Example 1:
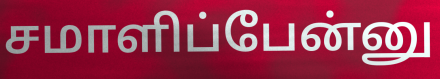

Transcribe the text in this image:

சமாளிப்பேன்னு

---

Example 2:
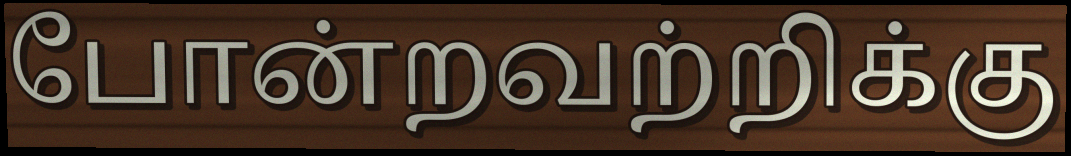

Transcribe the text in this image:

போன்றவற்றிக்கு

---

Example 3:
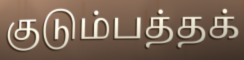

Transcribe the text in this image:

குடும்பத்தக்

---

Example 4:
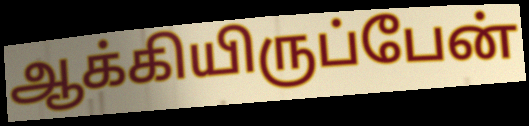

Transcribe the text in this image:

ஆக்கியிருப்பேன்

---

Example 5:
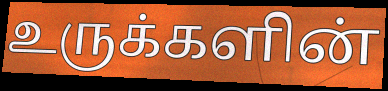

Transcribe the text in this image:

உருக்களின்